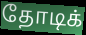
தோடிக்